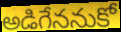
అడిగేననుకో